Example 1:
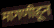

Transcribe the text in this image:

मागणीहून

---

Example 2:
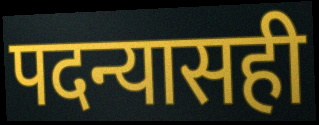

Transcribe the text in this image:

पदन्यासही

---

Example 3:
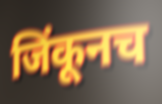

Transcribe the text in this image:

जिंकूनच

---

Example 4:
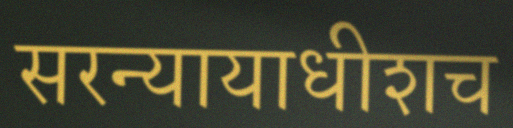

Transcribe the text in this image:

सरन्यायाधीशच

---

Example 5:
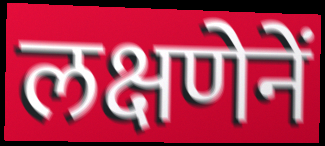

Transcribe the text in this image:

लक्षणेनें